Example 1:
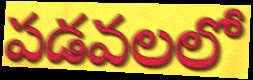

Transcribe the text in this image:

పడవలలో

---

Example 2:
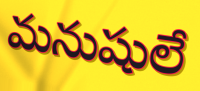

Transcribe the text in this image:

మనుషులే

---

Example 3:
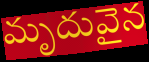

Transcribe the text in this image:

మృదువైన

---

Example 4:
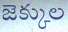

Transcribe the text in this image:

జెక్కుల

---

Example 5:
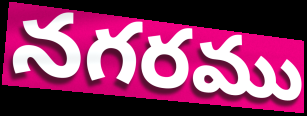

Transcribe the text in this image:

నగరము